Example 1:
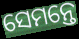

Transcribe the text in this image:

ସେମନ୍ତେ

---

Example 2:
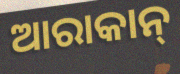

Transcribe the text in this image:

ଆରାକାନ୍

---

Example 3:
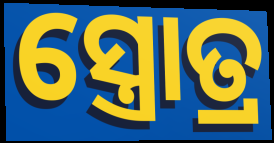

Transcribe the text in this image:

ସ୍ତ୍ରୋତ୍ର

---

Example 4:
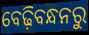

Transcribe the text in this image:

ବେଢ଼ିବନ୍ଧନରୁ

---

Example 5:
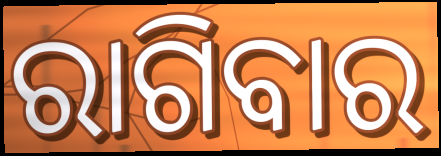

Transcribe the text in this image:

ରାଗିବାର